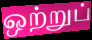
ஒற்றுப்